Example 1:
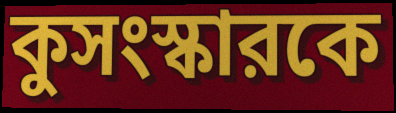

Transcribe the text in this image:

কুসংস্কারকে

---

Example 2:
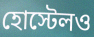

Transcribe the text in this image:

হোস্টেলও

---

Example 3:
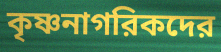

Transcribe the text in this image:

কৃষ্ণনাগরিকদের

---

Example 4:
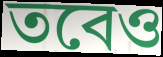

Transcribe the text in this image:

তবেও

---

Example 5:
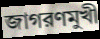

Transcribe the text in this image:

জাগরণমুখী